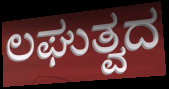
ಲಘುತ್ವದ